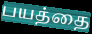
பயத்தை